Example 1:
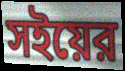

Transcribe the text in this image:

সইয়ের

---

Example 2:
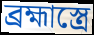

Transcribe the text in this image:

ব্রহ্মাস্ত্রে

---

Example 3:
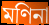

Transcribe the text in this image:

মণিনা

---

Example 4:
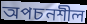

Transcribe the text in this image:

অপচনশীল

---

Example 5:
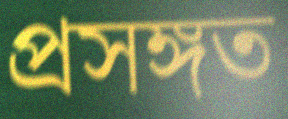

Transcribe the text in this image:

প্রসঙ্গত